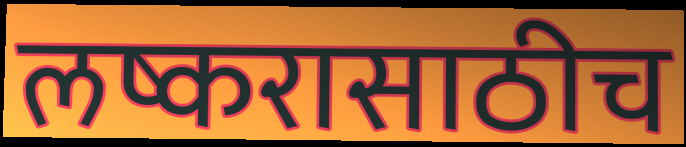
लष्करासाठीच